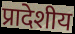
प्रादेशीय